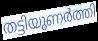
തട്ടിയുണർത്തി